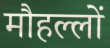
मौहल्लों